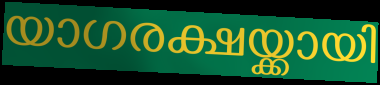
യാഗരക്ഷയ്ക്കായി